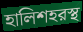
হালিশহরস্থ